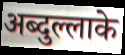
अब्दुल्लाके